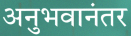
अनुभवानंतर